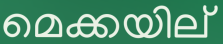
മെക്കയില്